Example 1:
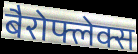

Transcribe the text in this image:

बैरोफ्लेक्स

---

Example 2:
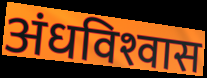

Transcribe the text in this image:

अंधविश्वास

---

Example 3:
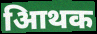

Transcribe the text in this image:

आिथक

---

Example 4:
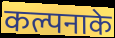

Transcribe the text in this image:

कल्पनाके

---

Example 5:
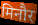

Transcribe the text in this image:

मिनौर